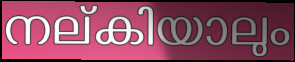
നല്‌കിയാലും